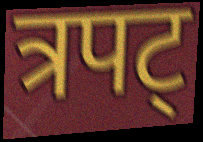
त्रपट्